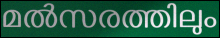
മൽസരത്തിലും